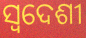
ସ୍ଵଦେଶୀ